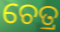
ଚେତ୍ର